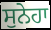
ਸੁਨੇਹਾ